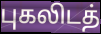
புகலிடத்